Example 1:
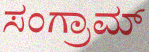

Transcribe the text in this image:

ಸಂಗ್ರಾಮ್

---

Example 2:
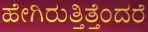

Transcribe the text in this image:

ಹೇಗಿರುತ್ತಿತ್ತೆಂದರೆ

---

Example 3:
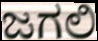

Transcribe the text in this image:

ಜಗಲಿ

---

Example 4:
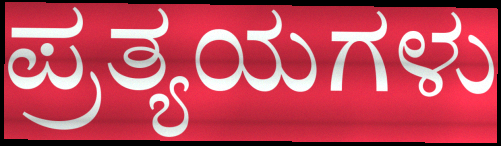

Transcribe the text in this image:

ಪ್ರತ್ಯಯಗಳು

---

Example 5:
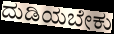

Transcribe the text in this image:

ದುಡಿಯಬೇಕು